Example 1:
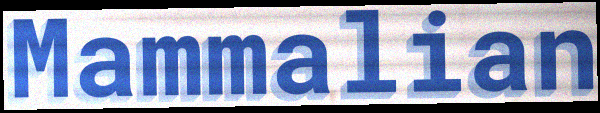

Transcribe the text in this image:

Mammalian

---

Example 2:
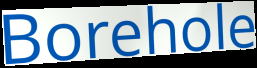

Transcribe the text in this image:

Borehole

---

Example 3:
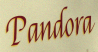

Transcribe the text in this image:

Pandora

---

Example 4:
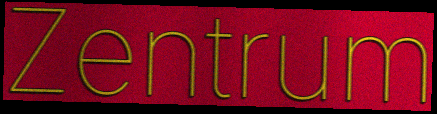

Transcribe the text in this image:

Zentrum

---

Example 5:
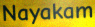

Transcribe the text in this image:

Nayakam